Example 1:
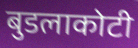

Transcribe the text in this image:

बुडलाकोटी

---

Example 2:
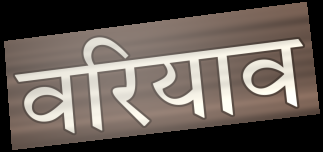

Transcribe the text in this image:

वरियाव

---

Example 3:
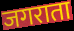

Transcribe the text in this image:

जगराता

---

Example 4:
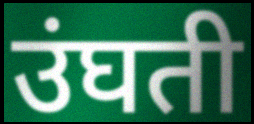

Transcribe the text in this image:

उंघती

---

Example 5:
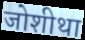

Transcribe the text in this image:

जोशीथा